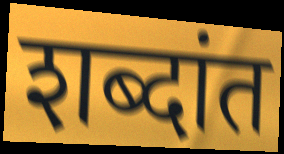
शब्दांत